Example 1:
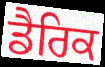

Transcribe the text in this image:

ਡੈਰਿਕ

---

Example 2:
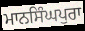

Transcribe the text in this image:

ਮਾਨਸਿੰਘਪੁਰਾ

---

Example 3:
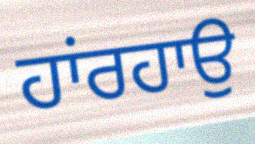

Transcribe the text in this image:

ਹਾਂਰਹਾਉ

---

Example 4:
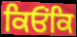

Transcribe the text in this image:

ਕਿਓਂਕਿ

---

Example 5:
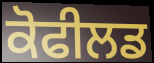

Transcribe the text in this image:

ਕੋਫੀਲਡ